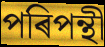
পৰিপন্থী